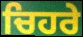
ਚਿਹਰੇ